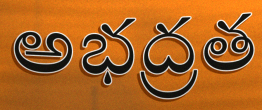
అభద్రత